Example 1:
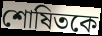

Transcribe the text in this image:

শোষিতকে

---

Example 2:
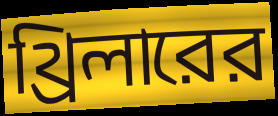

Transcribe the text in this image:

থ্রিলারের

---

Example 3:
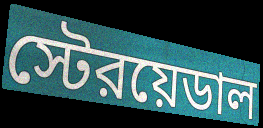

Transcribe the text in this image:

স্টেরয়েডাল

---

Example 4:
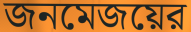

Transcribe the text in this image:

জনমেজয়ের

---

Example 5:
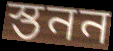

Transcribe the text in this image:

স্তনন